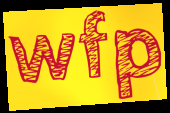
wfp